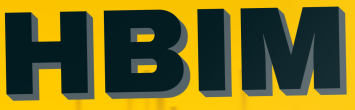
HBIM